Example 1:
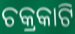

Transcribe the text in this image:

ଚକ୍ରକାଟି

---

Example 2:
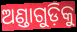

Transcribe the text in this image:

ଅଣ୍ଡାଗୁଡ଼ିକୁ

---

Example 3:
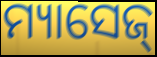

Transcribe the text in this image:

ମ୍ୟାସେଜ୍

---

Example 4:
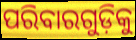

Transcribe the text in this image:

ପରିବାରଗୁଡ଼ିକୁ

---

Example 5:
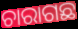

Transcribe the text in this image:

ଚାରାଗଛ